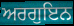
ਅਰਗੁਇਨ